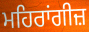
ਮਹਿਰਾਂਗੀਜ਼